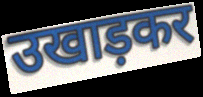
उखाड़कर